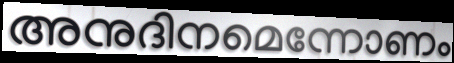
അനുദിനമെന്നോണം